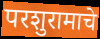
परशुरामाचे